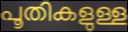
പൂതികളുള്ള